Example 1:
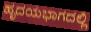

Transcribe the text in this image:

ಹೃದಯಭಾಗದಲ್ಲಿ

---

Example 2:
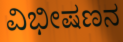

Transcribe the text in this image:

ವಿಭೀಷಣನ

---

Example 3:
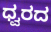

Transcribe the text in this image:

ಧ್ವರದ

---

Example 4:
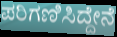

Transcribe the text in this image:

ಪರಿಗಣಿಸಿದ್ದೇನೆ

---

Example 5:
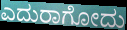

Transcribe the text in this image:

ಎದುರಾಗೋದು